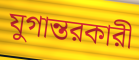
যুগান্তরকারী